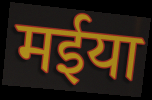
मईया